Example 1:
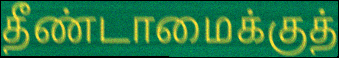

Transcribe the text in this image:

தீண்டாமைக்குத்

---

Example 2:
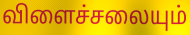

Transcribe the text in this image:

விளைச்சலையும்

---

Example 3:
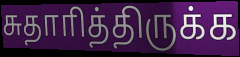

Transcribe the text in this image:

சுதாரித்திருக்க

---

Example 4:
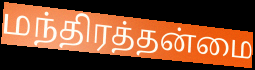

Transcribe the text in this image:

மந்திரத்தன்மை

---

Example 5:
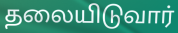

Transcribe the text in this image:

தலையிடுவார்